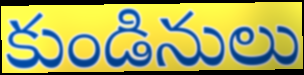
కుండినులు